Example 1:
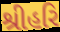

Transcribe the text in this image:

શ્રીહરિ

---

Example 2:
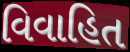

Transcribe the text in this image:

વિવાહિત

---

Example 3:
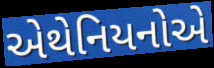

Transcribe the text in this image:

એથેનિયનોએ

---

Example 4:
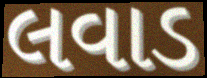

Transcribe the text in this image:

લવાડ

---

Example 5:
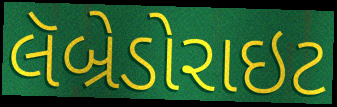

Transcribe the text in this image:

લૅબ્રેડોરાઇટ